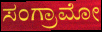
ಸಂಗ್ರಾಮೋ